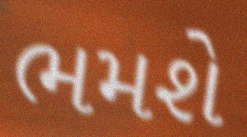
ભમશે